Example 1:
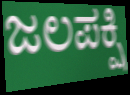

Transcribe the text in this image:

ಜಲಪಕ್ಷಿ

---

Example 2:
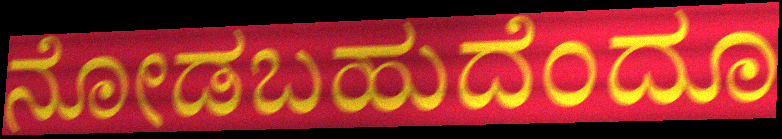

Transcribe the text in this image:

ನೋಡಬಹುದೆಂದೂ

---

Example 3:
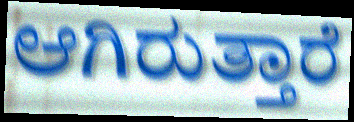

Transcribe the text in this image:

ಆಗಿರುತ್ತಾರೆ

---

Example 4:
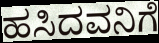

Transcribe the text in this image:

ಹಸಿದವನಿಗೆ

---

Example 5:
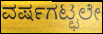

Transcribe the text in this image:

ವರ್ಷಗಟ್ಟಲೇ